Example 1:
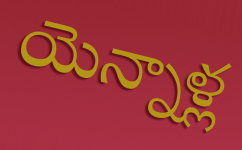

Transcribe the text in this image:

యెన్నాళ్ల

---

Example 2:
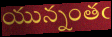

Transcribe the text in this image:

యున్నంతఁ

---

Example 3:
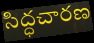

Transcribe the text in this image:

సిద్ధచారణ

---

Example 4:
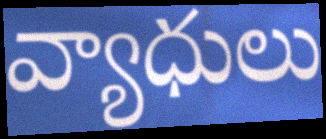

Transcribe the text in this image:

వ్యాధులు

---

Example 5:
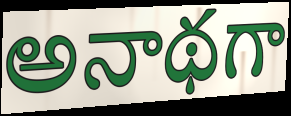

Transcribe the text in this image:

అనాథగా